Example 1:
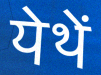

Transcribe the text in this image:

येथें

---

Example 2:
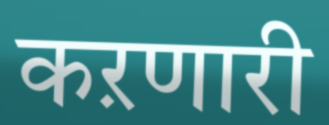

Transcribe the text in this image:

कऱणारी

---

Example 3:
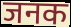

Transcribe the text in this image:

जनक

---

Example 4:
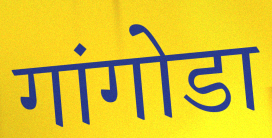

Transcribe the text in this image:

गांगोडा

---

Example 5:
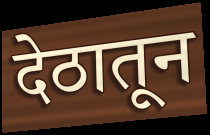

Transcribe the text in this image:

देठातून